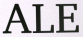
ALE